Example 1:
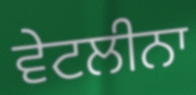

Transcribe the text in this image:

ਵੇਟਲੀਨਾ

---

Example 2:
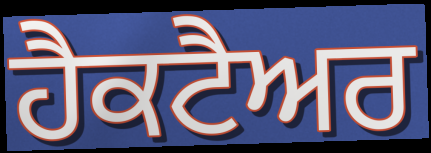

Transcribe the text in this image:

ਹੈਕਟੈਅਰ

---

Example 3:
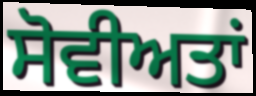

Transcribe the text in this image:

ਸੋਵੀਅਤਾਂ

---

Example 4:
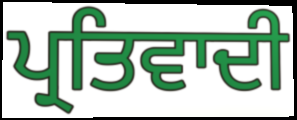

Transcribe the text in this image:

ਪ੍ਰਤਿਵਾਦੀ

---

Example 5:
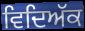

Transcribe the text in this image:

ਵਿਦਿਅੱਕ